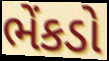
ભેંકડો